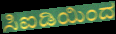
ಸಿಐಡಿಯಿಂದ